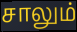
சாலும்